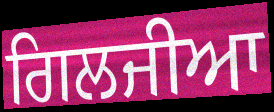
ਗਿਲਜੀਆ